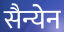
सैन्येन